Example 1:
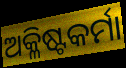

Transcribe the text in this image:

ଅକ୍ଳିଷ୍ଟକର୍ମା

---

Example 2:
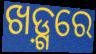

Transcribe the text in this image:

ଖଡ଼୍ଗରେ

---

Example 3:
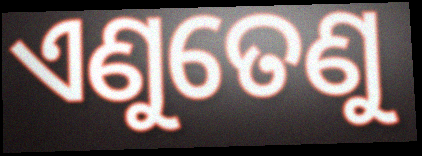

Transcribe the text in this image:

ଏଣୁତେଣୁ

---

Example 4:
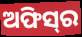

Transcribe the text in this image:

ଅଫିସ୍‌ର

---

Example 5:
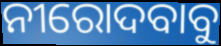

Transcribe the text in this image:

ନୀରୋଦବାବୁ